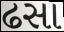
ઢસા